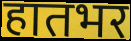
हातभर